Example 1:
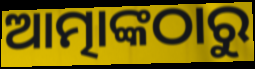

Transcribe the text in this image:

ଆତ୍ମାଙ୍କଠାରୁ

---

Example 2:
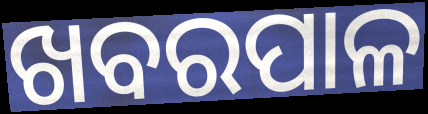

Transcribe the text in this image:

ଖବରପାଳ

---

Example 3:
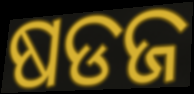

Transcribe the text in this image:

ଷଡଜ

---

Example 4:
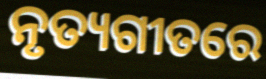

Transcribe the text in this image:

ନୃତ୍ୟଗୀତରେ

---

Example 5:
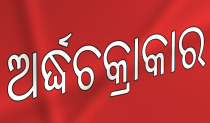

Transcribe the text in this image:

ଅର୍ଦ୍ଧଚକ୍ରାକାର